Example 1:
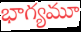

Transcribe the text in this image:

భాగ్యమూ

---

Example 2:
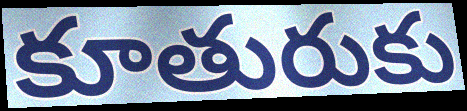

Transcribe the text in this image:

కూతురుకు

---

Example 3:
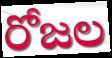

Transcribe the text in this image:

రోజల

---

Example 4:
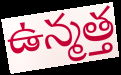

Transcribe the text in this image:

ఉన్మత్త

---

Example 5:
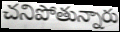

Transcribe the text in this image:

చనిపోతున్నారు